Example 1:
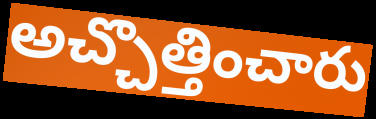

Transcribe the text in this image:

అచ్చొత్తించారు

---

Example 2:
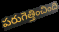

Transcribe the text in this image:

పరుగెత్తించింది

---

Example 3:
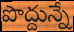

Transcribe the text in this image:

పొద్దున్నే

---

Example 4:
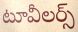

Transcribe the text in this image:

టూవీలర్స్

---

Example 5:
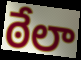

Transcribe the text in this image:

ఠేలా